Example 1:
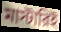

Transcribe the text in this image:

মাস্টারিই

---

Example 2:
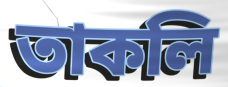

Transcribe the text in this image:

তাকলি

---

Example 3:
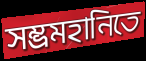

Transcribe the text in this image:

সম্ভ্রমহানিতে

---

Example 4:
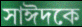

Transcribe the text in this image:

সাঈদকে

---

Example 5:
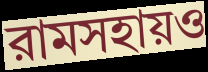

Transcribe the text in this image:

রামসহায়ও